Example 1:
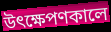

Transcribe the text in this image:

উৎক্ষেপণকালে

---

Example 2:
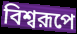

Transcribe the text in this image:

বিশ্বরূপে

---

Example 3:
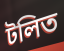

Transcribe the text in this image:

টলিত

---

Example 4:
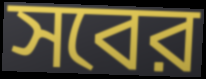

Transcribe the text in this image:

সবের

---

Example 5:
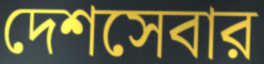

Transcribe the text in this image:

দেশসেবার